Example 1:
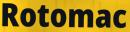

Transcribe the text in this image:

Rotomac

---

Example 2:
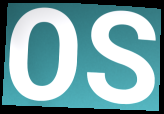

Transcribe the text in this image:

OS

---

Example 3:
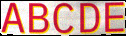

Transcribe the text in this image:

ABCDE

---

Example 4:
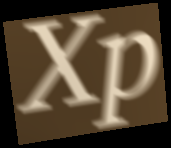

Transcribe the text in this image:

Xp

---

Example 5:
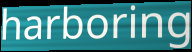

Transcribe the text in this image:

harboring